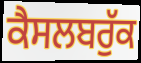
ਕੈਸਲਬਰੁੱਕ